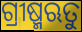
ଗ୍ରୀଷ୍ମଋତୁ